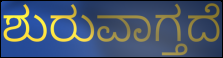
ಶುರುವಾಗ್ತದೆ